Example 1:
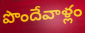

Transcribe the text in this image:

పొందేవాళ్లం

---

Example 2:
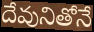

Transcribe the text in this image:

దేవునితోనే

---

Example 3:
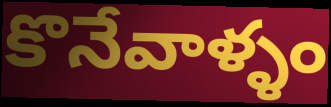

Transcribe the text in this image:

కొనేవాళ్ళం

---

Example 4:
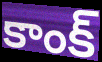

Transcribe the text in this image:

కాంక్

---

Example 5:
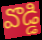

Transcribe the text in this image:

వొడ్డి